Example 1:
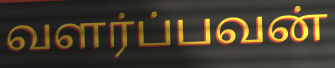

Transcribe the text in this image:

வளர்ப்பவன்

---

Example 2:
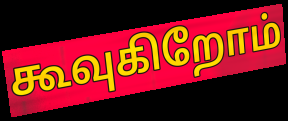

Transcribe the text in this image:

கூவுகிறோம்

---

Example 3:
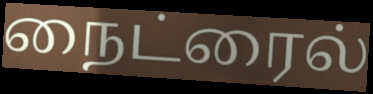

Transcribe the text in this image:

நைட்ரைல்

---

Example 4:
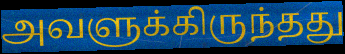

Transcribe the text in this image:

அவளுக்கிருந்தது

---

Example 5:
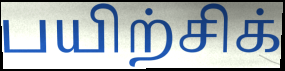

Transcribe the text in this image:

பயிற்சிக்